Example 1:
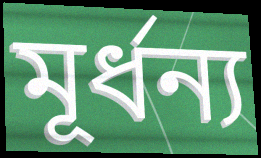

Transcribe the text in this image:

মূৰ্ধন্য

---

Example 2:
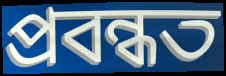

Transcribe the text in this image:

প্ৰবন্ধত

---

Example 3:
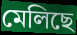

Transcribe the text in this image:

মেলিছে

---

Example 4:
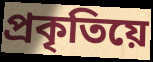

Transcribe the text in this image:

প্ৰকৃতিয়ে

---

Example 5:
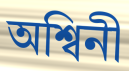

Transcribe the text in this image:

অশ্বিনী